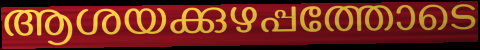
ആശയക്കുഴപ്പത്തോടെ